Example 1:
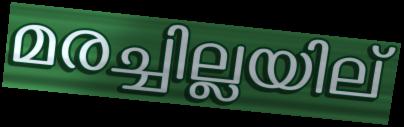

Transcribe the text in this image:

മരച്ചില്ലയില്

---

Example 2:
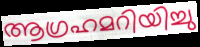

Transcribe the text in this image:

ആഗ്രഹമറിയിച്ചു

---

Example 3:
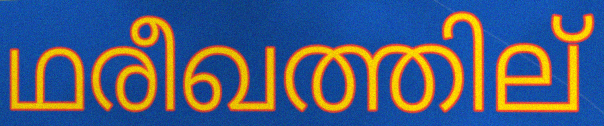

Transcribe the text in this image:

ഥരീഖത്തില്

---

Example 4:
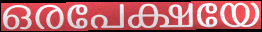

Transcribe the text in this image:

ഒരപേക്ഷയേ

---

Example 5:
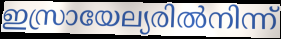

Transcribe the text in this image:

ഇസ്രായേല്യരിൽനിന്ന്